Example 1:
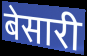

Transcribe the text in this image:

बेसारी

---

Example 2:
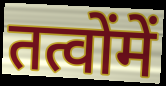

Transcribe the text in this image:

तत्वोंमें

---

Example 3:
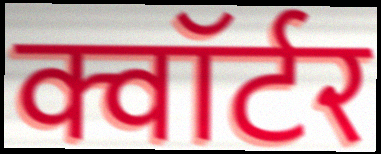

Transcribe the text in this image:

क्वॉर्टर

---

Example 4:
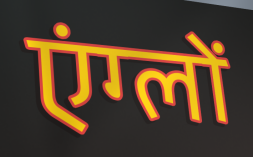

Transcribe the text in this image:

एंग्लों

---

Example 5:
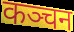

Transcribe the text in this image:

कञ्चन